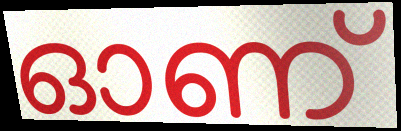
ഓണ്